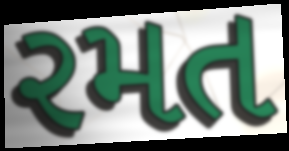
રમત